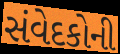
સંવેદકોની